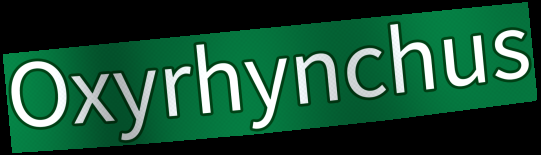
Oxyrhynchus